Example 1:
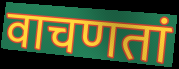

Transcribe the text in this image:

वाचणतां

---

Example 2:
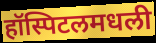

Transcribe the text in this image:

हॉस्पिटलमधली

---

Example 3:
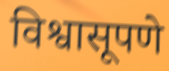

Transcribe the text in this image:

विश्वासूपणे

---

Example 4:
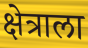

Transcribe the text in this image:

क्षेत्राला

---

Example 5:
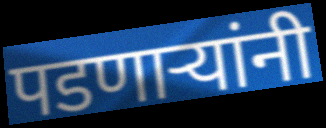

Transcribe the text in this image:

पडणाऱ्यांनी